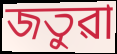
জতুৱা